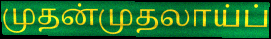
முதன்முதலாய்ப்